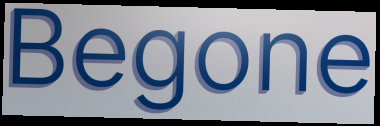
Begone